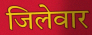
जिलेवार